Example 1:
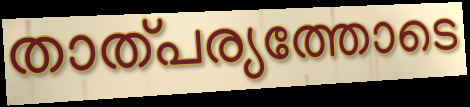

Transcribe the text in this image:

താത്പര്യത്തോടെ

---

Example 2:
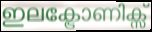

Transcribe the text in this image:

ഇലക്ട്രോണിക്സ്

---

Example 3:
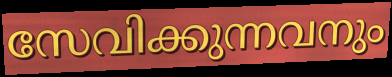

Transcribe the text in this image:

സേവിക്കുന്നവനും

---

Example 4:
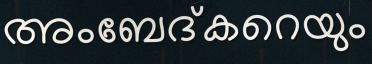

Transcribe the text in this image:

അംബേദ്കറെയും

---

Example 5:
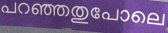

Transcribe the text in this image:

പറഞ്ഞതുപോലെ